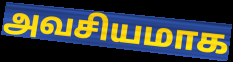
அவசியமாக